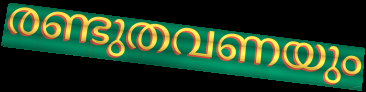
രണ്ടുതവണയും